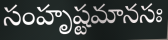
సంహృష్టమానసః